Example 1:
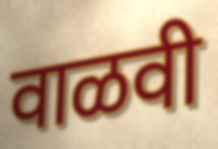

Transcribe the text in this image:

वाळवी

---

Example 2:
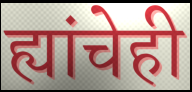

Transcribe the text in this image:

ह्यांचेही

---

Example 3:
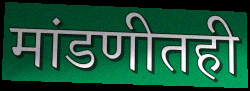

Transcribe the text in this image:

मांडणीतही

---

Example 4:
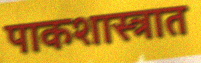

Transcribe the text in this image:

पाकशास्त्रात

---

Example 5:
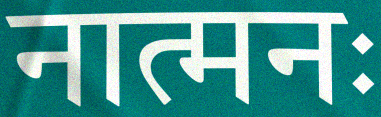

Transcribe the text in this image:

नात्मनः